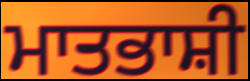
ਮਾਤਭਾਸ਼ੀ